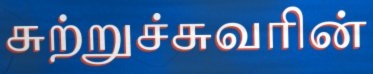
சுற்றுச்சுவரின்